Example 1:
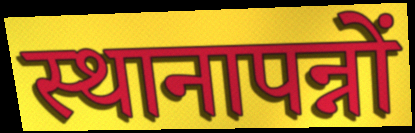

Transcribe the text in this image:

स्थानापन्नों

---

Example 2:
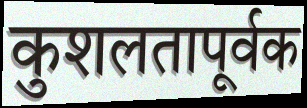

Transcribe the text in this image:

कुशलतापूर्वक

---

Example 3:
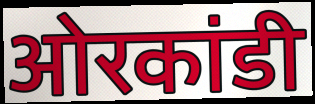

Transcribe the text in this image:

ओरकांडी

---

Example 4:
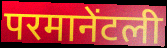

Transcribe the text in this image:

परमानेंटली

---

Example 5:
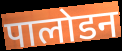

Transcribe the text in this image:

पालोडन